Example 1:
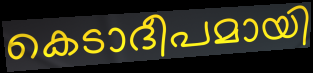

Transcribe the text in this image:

കെടാദീപമായി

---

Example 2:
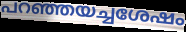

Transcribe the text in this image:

പറഞ്ഞയച്ചശേഷം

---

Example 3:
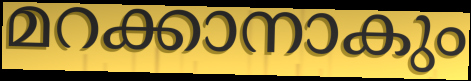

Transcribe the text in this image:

മറക്കാനാകും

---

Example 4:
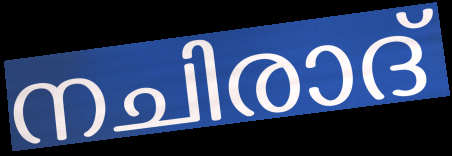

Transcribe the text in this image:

നചിരാദ്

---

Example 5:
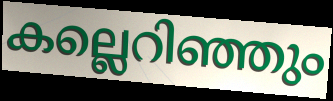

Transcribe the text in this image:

കല്ലെറിഞ്ഞും